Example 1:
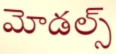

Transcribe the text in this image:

మోడల్స్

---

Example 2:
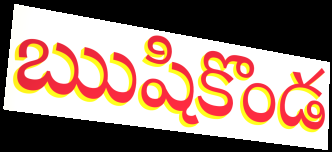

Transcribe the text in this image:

ఋషికొండ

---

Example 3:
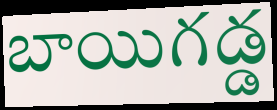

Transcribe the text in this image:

బాయిగడ్డ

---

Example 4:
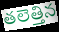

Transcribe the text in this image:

తలెత్తిన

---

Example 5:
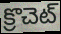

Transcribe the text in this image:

క్రొచెట్